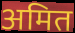
अमित